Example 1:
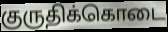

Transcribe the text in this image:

குருதிக்கொடை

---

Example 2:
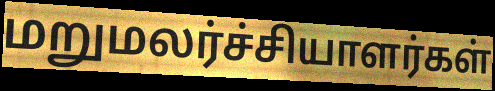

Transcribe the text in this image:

மறுமலர்ச்சியாளர்கள்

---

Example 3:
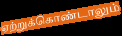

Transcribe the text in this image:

ஏற்றுக்கொண்டாலும்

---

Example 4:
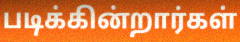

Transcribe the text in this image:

படிக்கின்றார்கள்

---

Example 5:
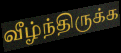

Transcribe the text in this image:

வீழ்ந்திருக்க